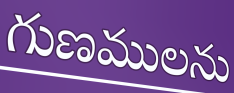
గుణములను